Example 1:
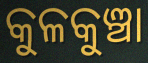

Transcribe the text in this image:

କୁଳକୁଞ୍ଚା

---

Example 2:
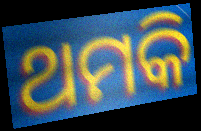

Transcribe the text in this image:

ଥମକି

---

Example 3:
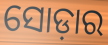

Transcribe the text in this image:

ସୋଡ଼ାର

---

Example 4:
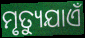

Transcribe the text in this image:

ମୃତ୍ୟୁଯାଏଁ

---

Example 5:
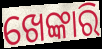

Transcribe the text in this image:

ଖେଙ୍କାରି